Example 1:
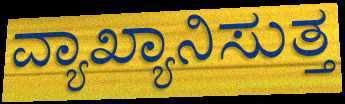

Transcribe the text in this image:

ವ್ಯಾಖ್ಯಾನಿಸುತ್ತ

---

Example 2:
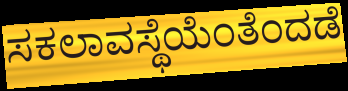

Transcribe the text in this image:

ಸಕಲಾವಸ್ಥೆಯೆಂತೆಂದಡೆ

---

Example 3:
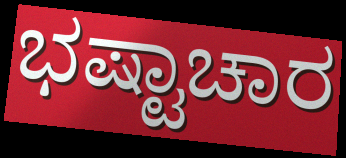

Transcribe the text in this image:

ಭಷ್ಟಾಚಾರ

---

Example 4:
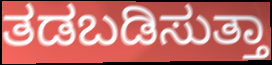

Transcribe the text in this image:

ತಡಬಡಿಸುತ್ತಾ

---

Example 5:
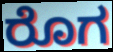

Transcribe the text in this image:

ರೊಗ